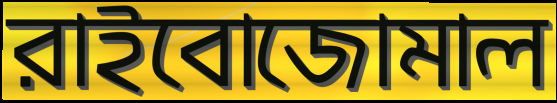
রাইবোজোমাল